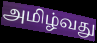
அமிழ்வது